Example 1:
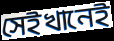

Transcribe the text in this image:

সেইখানেই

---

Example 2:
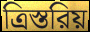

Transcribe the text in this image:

ত্রিস্তরিয়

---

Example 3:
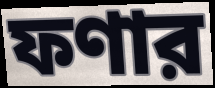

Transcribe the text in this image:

ফণার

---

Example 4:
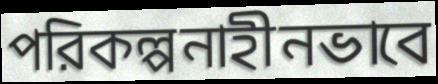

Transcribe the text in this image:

পরিকল্পনাহীনভাবে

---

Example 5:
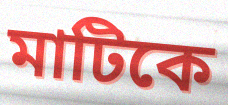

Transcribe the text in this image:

মাটিকে